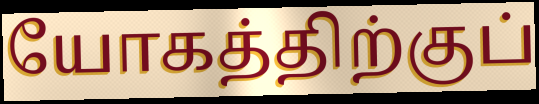
யோகத்திற்குப்